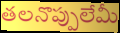
తలనొప్పులేమీ